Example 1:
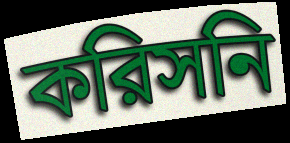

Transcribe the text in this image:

করিসনি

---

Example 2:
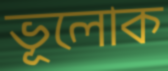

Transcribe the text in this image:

ভূলোক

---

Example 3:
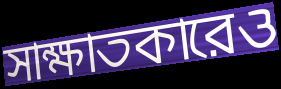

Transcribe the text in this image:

সাক্ষাতকারেও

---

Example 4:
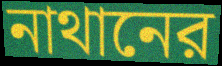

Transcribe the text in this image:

নাথানের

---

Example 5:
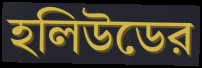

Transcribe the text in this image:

হলিউডের